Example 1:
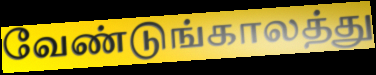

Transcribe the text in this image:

வேண்டுங்காலத்து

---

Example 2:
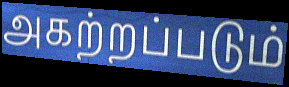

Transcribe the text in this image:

அகற்றப்படும்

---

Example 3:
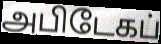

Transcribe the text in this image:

அபிடேகப்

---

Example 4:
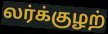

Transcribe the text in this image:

லர்க்குழற்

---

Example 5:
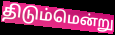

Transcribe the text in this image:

திடும்மென்று